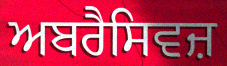
ਅਬਰੈਸਿਵਜ਼